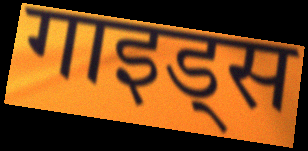
गाइड्स